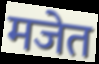
मजेत